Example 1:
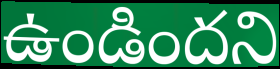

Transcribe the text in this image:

ఉండిందని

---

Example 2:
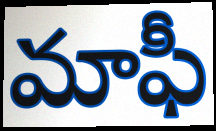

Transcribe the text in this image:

మాఫీ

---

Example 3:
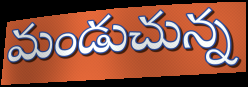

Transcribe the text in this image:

మండుచున్న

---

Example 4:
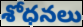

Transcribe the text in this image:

శోధనలు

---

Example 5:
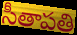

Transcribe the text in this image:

సీతాపతి